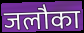
जलौका